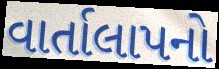
વાર્તાલાપનો